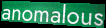
anomalous